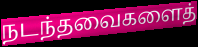
நடந்தவைகளைத்